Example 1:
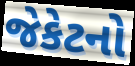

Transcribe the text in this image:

જેકેટનો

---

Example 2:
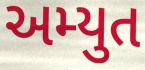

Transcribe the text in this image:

અમ્યુત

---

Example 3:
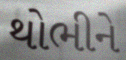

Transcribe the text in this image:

થોભીને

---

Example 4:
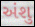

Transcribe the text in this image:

અંશુ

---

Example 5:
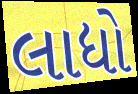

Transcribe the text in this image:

લાદ્યો